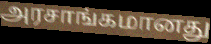
அரசாங்கமானது